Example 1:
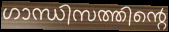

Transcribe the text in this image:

ഗാന്ധിസത്തിന്റെ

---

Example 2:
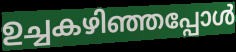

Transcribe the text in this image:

ഉച്ചകഴിഞ്ഞപ്പോൾ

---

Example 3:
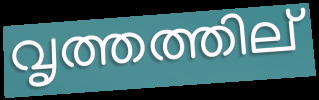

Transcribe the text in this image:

വൃത്തത്തില്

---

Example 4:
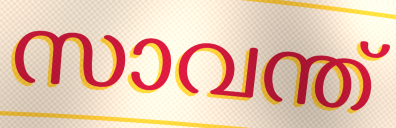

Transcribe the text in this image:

സാവന്ത്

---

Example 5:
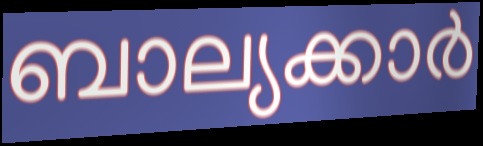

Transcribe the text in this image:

ബാല്യക്കാർ